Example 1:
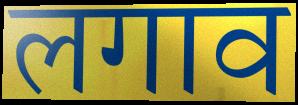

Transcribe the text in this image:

लगाव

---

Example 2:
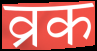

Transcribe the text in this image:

व्रक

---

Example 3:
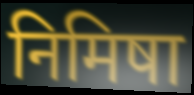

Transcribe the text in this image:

निमिषा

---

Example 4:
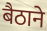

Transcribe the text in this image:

बैठाने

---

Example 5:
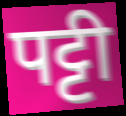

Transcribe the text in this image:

पट्टी